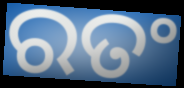
ରତଂ